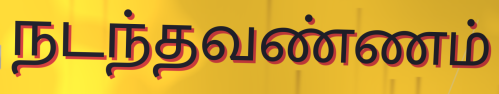
நடந்தவண்ணம்